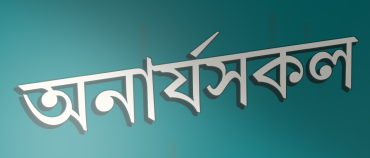
অনাৰ্যসকল